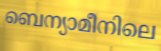
ബെന്യാമീനിലെ